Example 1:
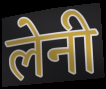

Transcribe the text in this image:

लेनी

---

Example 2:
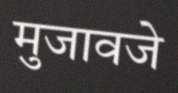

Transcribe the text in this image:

मुजावजे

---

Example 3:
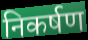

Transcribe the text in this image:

निकर्षण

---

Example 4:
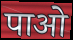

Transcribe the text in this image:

पाओ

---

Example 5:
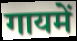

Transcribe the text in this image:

गायमें